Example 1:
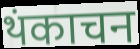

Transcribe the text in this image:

थंकाचन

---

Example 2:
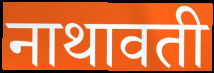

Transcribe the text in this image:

नाथावती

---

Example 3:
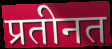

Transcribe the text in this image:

प्रतीनत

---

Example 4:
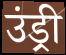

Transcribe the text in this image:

उंड्री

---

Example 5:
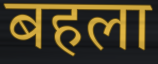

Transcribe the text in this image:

बहला